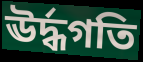
ঊর্দ্ধগতি